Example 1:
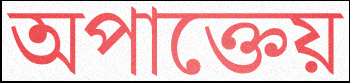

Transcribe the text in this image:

অপাক্তেয়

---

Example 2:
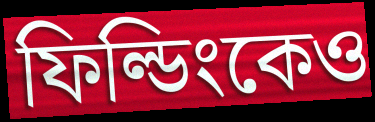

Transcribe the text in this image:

ফিল্ডিংকেও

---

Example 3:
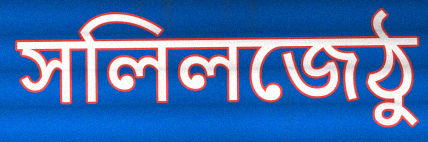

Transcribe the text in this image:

সলিলজেঠু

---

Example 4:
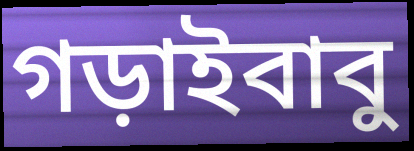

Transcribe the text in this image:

গড়াইবাবু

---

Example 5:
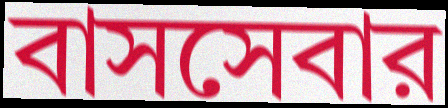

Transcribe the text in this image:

বাসসেবার